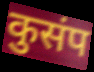
कुसंप